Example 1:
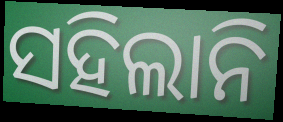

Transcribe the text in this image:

ସହିଲାନି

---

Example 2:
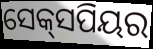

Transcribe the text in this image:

ସେକ୍‌ସପିୟର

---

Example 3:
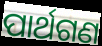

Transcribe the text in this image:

ପାର୍ଥଗଣ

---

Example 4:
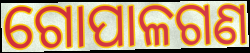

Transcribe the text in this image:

ଗୋପାଳଗଣ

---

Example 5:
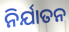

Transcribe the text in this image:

ନିର୍ଯାତନ